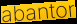
abantor